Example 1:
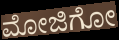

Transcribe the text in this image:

ಮೋಜಿಗೋ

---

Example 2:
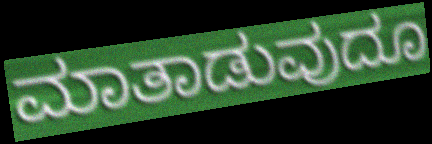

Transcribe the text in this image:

ಮಾತಾಡುವುದೂ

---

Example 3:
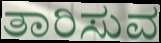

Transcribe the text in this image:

ತಾರಿಸುವ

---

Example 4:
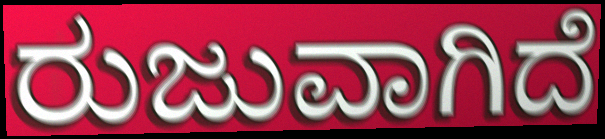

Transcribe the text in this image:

ರುಜುವಾಗಿದೆ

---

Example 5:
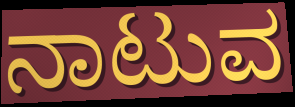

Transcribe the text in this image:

ನಾಟುವ